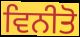
ਵਿਨੀਤੋ